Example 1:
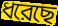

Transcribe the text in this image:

ধরেছে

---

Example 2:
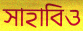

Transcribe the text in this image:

সাহাবিও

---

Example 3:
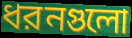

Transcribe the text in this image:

ধরনগুলো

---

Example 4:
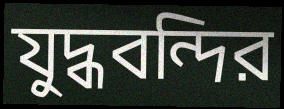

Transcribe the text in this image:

যুদ্ধবন্দির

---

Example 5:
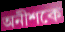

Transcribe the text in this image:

অনীশকে